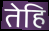
तेहि